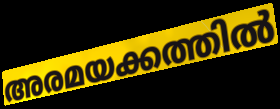
അരമയക്കത്തിൽ